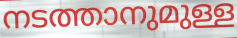
നടത്താനുമുള്ള